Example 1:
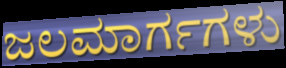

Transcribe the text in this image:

ಜಲಮಾರ್ಗಗಳು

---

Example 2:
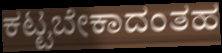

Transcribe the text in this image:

ಕಟ್ಟಬೇಕಾದಂತಹ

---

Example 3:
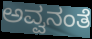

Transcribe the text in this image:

ಅವ್ವನಂತೆ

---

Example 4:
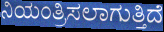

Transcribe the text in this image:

ನಿಯಂತ್ರಿಸಲಾಗುತ್ತಿದೆ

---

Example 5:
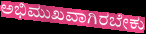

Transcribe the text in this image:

ಅಭಿಮುಖವಾಗಿರಬೇಕು